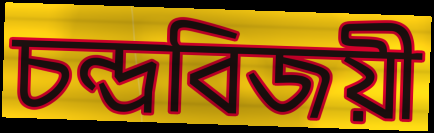
চন্দ্রবিজয়ী